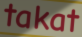
takat